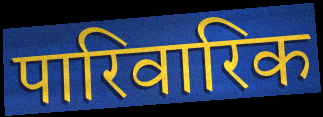
पारिवारिक